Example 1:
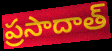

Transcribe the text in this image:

ప్రసాదాత్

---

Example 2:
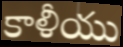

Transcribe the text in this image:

కాళీయు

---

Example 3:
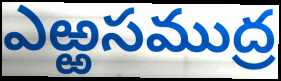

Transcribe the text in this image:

ఎఱ్ఱసముద్ర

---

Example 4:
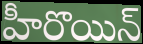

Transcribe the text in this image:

హీరొయిన్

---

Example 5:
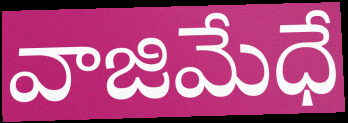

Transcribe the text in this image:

వాజిమేధే